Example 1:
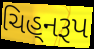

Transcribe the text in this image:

ચિહ્‌નરૂપ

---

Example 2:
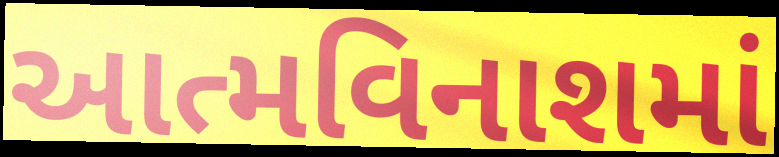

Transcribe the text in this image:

આત્મવિનાશમાં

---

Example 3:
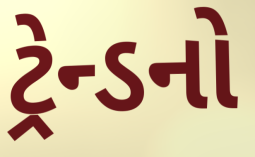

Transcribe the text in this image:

ટ્રેન્ડનો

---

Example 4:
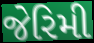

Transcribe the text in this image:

જેરિમી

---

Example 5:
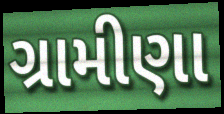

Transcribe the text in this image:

ગ્રામીણા